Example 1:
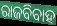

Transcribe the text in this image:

ରାଜବିବାହ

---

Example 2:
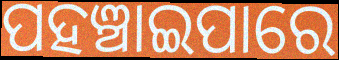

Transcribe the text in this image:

ପହଞ୍ଚାଇପାରେ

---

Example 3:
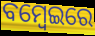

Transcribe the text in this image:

ବମ୍ବେଇରେ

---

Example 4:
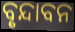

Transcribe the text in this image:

ବୃନ୍ଦାବନ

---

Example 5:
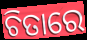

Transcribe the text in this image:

ଚିତାରେ